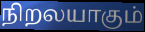
நிறலயாகும்